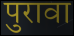
पुरावा